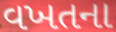
વખતના